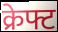
क्रेफ्ट